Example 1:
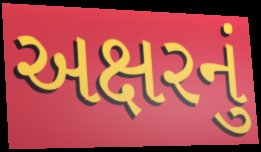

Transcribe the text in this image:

અક્ષરનું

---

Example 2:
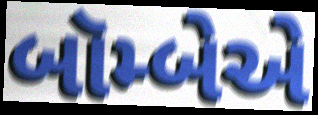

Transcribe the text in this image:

બૉમ્બેએ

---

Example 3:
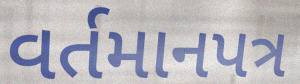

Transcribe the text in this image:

વર્તમાનપત્ર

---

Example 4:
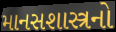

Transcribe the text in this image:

માનસશાસ્ત્રનો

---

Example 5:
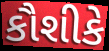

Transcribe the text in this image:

કૌશીકે